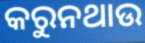
କରୁନଥାଉ